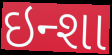
ઇન્શા